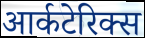
आर्कटेरिक्स